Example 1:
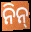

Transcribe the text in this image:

ନିନ୍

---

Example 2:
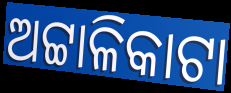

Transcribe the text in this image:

ଅଟ୍ଟାଳିକାଟା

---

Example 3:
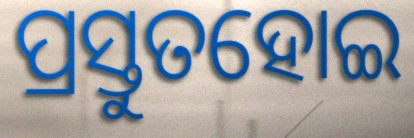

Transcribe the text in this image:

ପ୍ରସ୍ତୁତହୋଇ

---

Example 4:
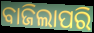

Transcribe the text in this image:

ବାଜିଲାପରି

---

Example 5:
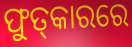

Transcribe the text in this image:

ଫୁତ୍‌କାରରେ